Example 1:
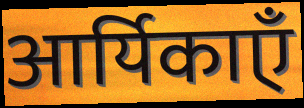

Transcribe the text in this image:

आर्यिकाएँ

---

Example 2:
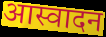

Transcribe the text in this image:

आस्वादन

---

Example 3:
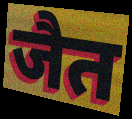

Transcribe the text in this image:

जैत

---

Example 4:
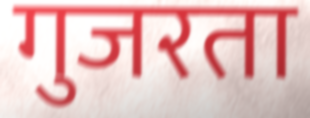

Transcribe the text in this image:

गुजरता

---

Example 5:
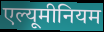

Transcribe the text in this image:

एल्यूमीनियम